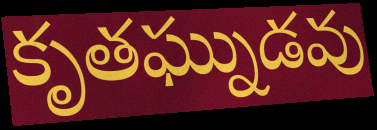
కృతఘ్నుడవు